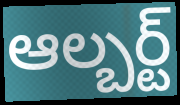
ఆల్బర్ట్